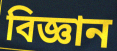
বিজ্ঞান